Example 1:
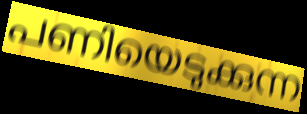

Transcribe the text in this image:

പണിയെടുക്കുന്ന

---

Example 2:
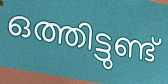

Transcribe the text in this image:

ഒത്തിട്ടുണ്ട്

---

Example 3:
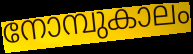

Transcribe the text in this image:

നോമ്പുകാലം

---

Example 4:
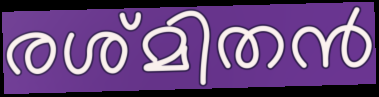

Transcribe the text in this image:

രശ്മിതൻ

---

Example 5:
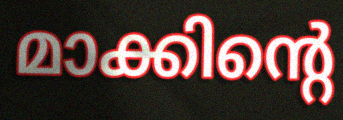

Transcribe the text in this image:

മാക്കിന്റെ